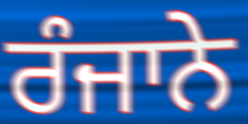
ਰੰਜਾਨੇ